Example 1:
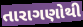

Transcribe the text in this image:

તારાગણોથી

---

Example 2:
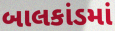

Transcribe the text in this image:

બાલકાંડમાં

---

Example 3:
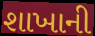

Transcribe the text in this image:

શાખાની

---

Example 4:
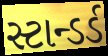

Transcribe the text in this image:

સ્ટાન્ડર્ડ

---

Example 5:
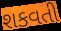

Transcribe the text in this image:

શકવતી